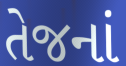
તેજનાં